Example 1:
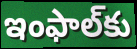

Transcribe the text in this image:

ఇంఫాల్‌కు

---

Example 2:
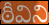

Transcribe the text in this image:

ఠీవిని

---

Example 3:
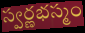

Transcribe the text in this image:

స్వర్ణభస్మం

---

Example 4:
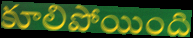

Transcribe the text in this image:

కూలిపోయింది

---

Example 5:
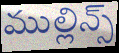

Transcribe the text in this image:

ముల్లిన్స్